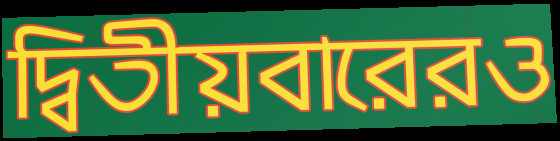
দ্বিতীয়বারেরও